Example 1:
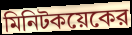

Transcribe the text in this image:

মিনিটকয়েকের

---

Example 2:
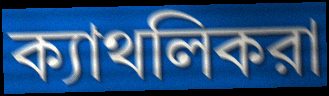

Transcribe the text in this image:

ক্যাথলিকরা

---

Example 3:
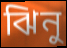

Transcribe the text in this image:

ঝিনু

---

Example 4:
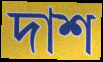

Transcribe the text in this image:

দাশ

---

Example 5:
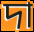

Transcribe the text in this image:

দা